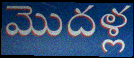
మొదళ్ల